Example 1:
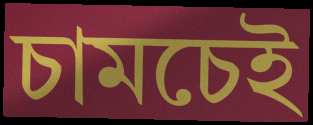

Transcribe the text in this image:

চামচেই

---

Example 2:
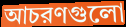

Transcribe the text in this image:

আচরণগুলো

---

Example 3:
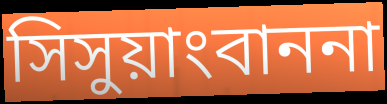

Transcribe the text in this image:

সিসুয়াংবাননা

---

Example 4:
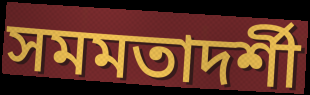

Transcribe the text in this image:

সমমতাদর্শী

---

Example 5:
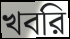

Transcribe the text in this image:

খবরি